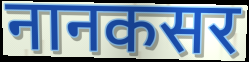
नानकसर